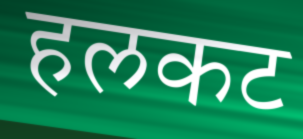
हलकट